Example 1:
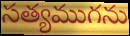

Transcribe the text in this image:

సత్యముగను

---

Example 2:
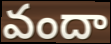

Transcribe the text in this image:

వందా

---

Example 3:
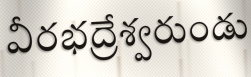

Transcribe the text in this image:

వీరభద్రేశ్వరుండు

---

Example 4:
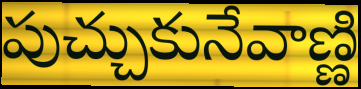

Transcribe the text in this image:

పుచ్చుకునేవాణ్ణి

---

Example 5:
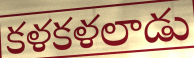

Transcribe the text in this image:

కళకళలాడు